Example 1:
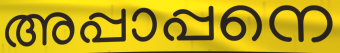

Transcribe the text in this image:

അപ്പാപ്പനെ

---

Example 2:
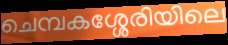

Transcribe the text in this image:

ചെമ്പകശ്ശേരിയിലെ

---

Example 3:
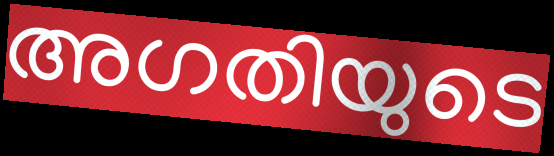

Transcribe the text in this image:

അഗതിയുടെ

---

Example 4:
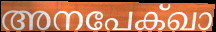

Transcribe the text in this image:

അനപേക്ഖാ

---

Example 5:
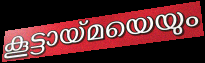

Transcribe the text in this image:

കൂട്ടായ്മയെയും